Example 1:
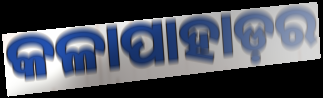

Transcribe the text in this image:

କଳାପାହାଡ଼ର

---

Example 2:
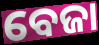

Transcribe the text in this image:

ବେଜା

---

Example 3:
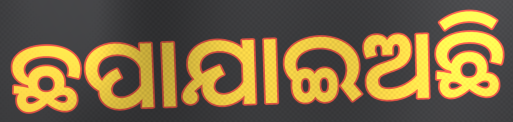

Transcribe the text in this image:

ଛପାଯାଇଅଛି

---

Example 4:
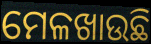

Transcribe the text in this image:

ମେଳଖାଉଛି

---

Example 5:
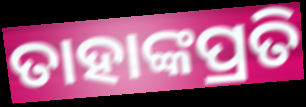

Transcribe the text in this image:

ତାହାଙ୍କପ୍ରତି